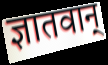
ज्ञातवान्